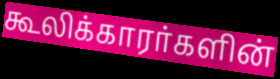
கூலிக்காரர்களின்